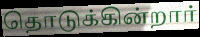
தொடுக்கின்றார்